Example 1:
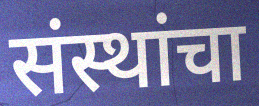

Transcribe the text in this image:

संस्थांचा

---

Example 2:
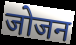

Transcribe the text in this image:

जोजन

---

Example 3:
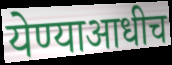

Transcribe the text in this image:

येण्याआधीच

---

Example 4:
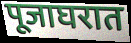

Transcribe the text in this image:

पूजाघरात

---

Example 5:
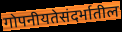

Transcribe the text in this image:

गोपनीयतेसंदर्भातील